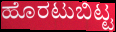
ಹೊರಟುಬಿಟ್ಟ